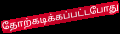
தோற்கடிக்கப்பட்டபோது